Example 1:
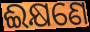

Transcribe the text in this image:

ଈକ୍ଷଣେ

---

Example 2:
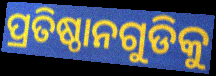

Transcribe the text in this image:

ପ୍ରତିଷ୍ଠାନଗୁଡିକୁ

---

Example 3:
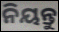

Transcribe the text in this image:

ନିୟନ୍ତୁ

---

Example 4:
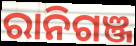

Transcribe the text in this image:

ରାନିଗଞ୍ଜ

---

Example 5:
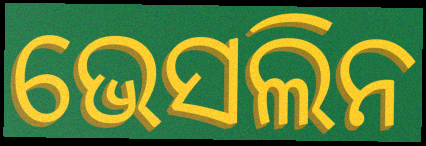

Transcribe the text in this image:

ଭେସଲିନ